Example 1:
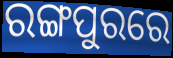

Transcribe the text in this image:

ରଙ୍ଗପୁରରେ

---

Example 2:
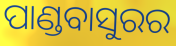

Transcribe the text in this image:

ପାଣ୍ଡବାସୁରର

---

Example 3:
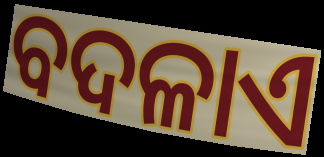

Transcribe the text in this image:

ବଦଳାଏ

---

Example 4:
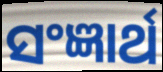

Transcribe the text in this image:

ସଂଜ୍ଞାର୍ଥ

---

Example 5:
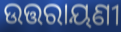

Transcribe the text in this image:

ଉତ୍ତରାୟଣୀ